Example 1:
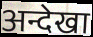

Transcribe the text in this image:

अन्देखा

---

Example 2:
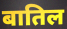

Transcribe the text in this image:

बातिल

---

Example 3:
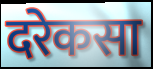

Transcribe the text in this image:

दरेकसा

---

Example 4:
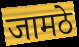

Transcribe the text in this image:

जामठे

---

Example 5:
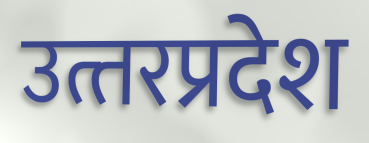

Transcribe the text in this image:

उत्‍तरप्रदेश